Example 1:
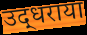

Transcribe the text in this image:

उद्धराया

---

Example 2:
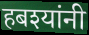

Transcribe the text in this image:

हबश्यांनी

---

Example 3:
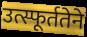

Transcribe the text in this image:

उत्स्फूर्ततेने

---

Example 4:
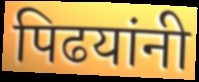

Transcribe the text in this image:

पिढयांनी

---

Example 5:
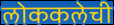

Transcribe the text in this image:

लोककलेची